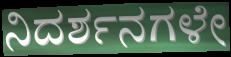
ನಿದರ್ಶನಗಳೇ